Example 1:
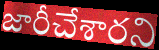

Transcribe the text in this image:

జారీచేశారని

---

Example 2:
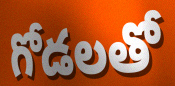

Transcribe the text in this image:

గోడలతో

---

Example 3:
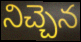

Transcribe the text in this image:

నిచ్చెన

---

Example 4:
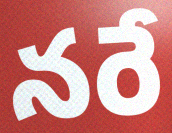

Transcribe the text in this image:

నరే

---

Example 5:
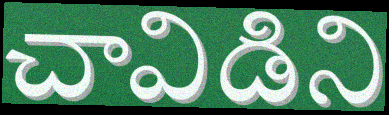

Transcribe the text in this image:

చావిడిని